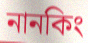
নানকিং